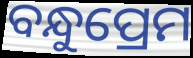
ବନ୍ଧୁପ୍ରେମ